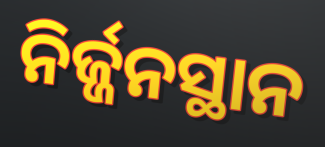
ନିର୍ଜ୍ଜନସ୍ଥାନ